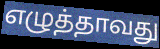
எழுத்தாவது